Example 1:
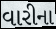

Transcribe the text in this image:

વારીના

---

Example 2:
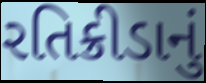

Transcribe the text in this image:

રતિક્રીડાનું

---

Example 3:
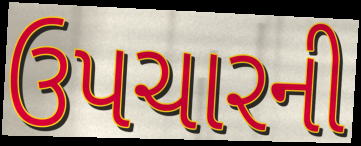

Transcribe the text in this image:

ઉપચારની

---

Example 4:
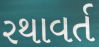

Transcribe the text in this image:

રથાવર્ત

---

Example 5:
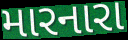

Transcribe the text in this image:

મારનારા